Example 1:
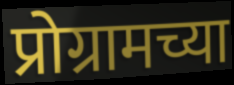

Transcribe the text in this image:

प्रोग्रामच्या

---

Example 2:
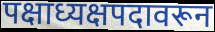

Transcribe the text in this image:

पक्षाध्यक्षपदावरून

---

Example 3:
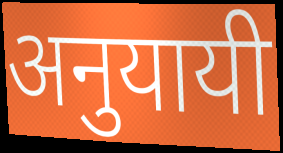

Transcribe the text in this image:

अनुयायी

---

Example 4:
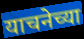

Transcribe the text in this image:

याचनेच्या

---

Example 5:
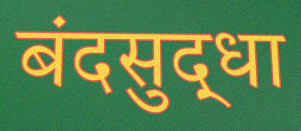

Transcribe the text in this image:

बंदसुद्धा